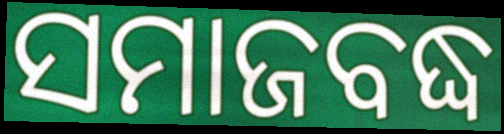
ସମାଜବଦ୍ଧ